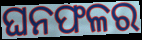
ଘନଫଳର